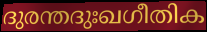
ദുരന്തദുഃഖഗീതിക